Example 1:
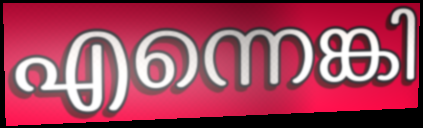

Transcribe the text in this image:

എന്നെങ്കി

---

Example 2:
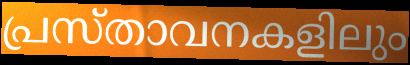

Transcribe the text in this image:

പ്രസ്താവനകളിലും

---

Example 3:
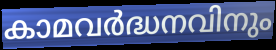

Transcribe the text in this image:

കാമവർദ്ധനവിനും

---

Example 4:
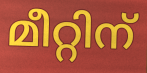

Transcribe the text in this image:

മീറ്റിന്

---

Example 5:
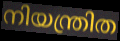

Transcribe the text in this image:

നിയന്ത്രിത